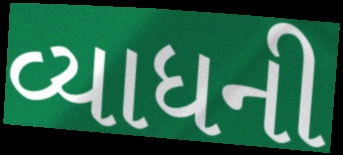
વ્યાધની